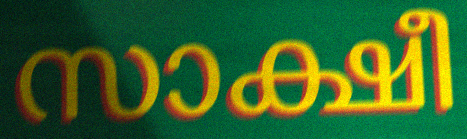
സാക്ഷീ